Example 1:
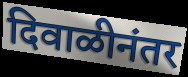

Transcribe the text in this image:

दिवाळीनंतर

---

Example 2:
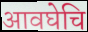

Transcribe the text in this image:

आवघेचि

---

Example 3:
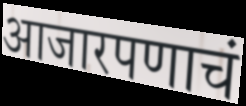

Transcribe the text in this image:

आजारपणाचं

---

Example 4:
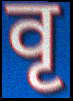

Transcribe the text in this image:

वृ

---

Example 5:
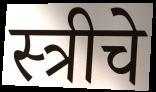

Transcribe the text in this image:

स्त्रीचे